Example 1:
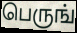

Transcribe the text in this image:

பெருங்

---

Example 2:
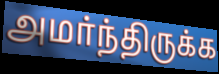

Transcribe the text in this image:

அமர்ந்திருக்க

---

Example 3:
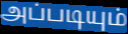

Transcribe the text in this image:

அப்படியும்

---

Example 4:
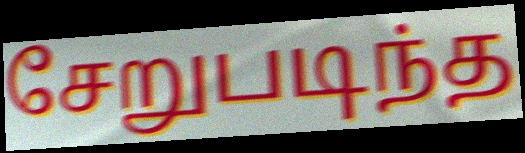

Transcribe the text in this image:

சேறுபடிந்த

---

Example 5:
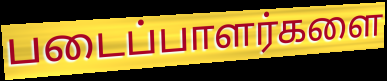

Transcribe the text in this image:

படைப்பாளர்களை